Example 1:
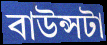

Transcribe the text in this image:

বাউন্সটা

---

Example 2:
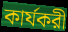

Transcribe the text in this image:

কার্যকরী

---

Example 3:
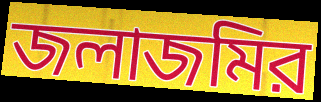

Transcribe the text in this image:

জলাজমির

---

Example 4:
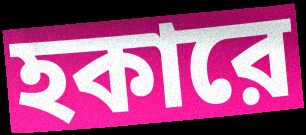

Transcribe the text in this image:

হকারে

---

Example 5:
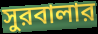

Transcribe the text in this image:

সুরবালার